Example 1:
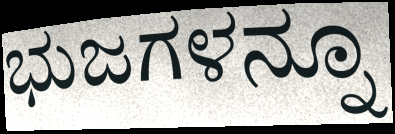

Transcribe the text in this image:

ಭುಜಗಳನ್ನೂ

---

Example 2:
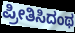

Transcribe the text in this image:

ಪ್ರೀತಿಸಿದಂಥ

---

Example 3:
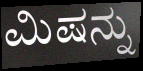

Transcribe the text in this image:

ಮಿಷನ್ನು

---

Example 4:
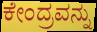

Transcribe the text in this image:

ಕೇಂದ್ರವನ್ನು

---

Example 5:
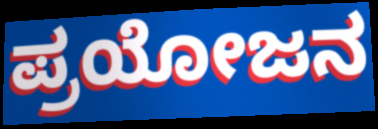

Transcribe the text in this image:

ಪ್ರಯೋಜನ